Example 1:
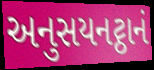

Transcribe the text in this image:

અનુસયનટ્ઠાનં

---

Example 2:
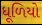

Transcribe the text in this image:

ધૂળિયો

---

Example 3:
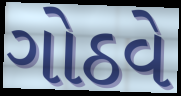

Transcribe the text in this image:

ગોઠવે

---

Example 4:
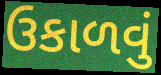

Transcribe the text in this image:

ઉકાળવું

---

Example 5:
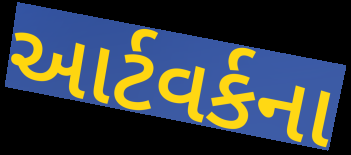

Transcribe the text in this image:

આર્ટવર્કના